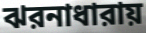
ঝরনাধারায়